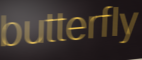
butterfly